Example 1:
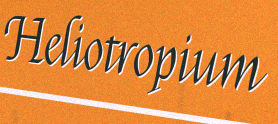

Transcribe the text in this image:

Heliotropium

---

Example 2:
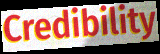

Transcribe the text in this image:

Credibility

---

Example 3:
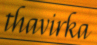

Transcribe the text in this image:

thavirka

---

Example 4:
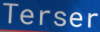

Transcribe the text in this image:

Terser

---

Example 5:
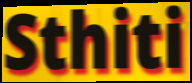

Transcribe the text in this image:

Sthiti